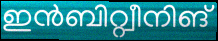
ഇൻബിറ്റ്വീനിങ്